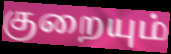
குறையும்